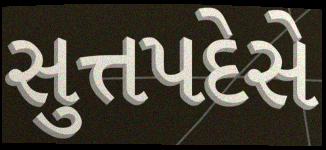
સુત્તપદેસે